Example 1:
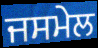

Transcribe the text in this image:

ਜਸਮੇਲ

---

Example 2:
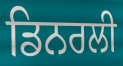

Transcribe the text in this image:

ਡਿਨਰਲੀ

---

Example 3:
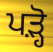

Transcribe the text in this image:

ਪ਼ੜ੍ਹੋ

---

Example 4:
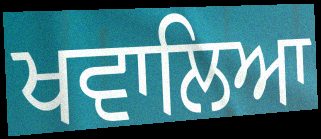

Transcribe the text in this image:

ਖਵਾਲਿਆ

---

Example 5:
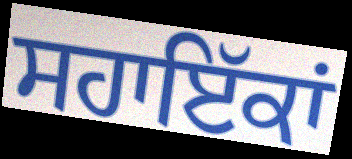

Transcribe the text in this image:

ਸਹਾਇੱਕਾਂ